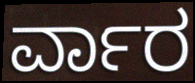
ರ್ವಾರ